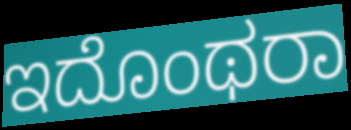
ಇದೊಂಥರಾ